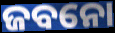
ଜବନୋ